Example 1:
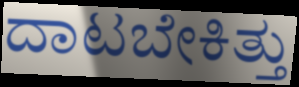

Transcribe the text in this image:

ದಾಟಬೇಕಿತ್ತು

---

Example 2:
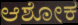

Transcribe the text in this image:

ಆಶೋಕ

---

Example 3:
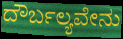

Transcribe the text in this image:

ದೌರ್ಬಲ್ಯವೇನು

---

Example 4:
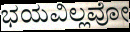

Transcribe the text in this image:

ಭಯವಿಲ್ಲವೋ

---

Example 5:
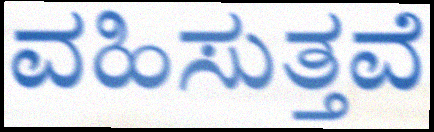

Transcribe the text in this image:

ವಹಿಸುತ್ತವೆ